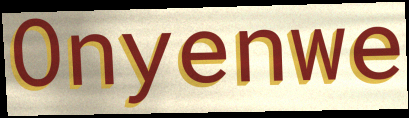
Onyenwe